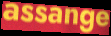
assange